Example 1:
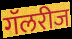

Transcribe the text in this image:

गॅलरीज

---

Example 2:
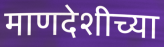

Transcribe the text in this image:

माणदेशीच्या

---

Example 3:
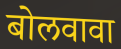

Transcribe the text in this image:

बोलवावा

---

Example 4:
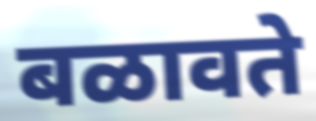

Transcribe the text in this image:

बळावते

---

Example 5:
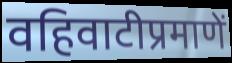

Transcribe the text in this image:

वहिवाटीप्रमाणें